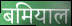
बमियाल